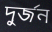
দুর্জন